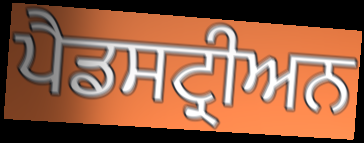
ਪੈਡਸਟ੍ਰੀਅਨ